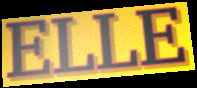
ELLE